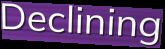
Declining